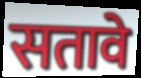
सतावे